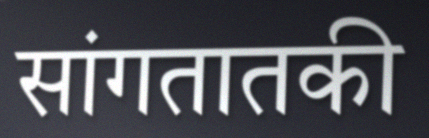
सांगतातकी